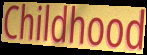
Childhood